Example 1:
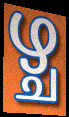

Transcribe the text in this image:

ഴ്ച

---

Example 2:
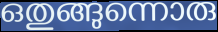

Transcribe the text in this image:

ഒതുങ്ങുന്നൊരു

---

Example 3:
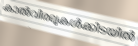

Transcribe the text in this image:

കാൽവിരലുകൾക്കിടയിൽ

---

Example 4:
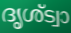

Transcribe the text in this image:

ദൃശ്ട്വാ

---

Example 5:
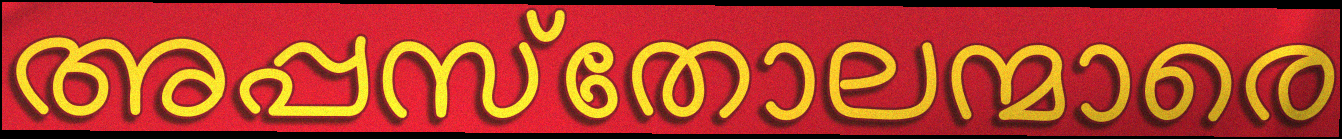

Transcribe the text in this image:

അപ്പസ്‌തോലന്മാരെ